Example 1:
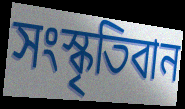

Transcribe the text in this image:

সংস্কৃতিবান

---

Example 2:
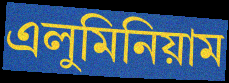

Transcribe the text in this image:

এলুমিনিয়াম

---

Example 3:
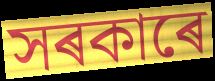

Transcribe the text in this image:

সৰকাৰে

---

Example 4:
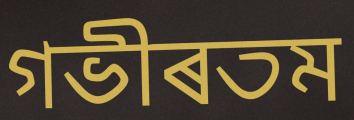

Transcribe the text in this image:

গভীৰতম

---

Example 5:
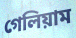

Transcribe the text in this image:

গেলিয়াম